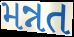
મન્નત